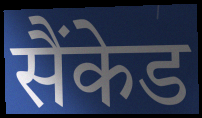
सैंकेड